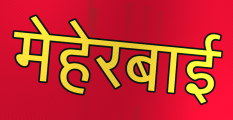
मेहेरबाई